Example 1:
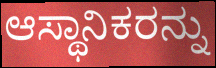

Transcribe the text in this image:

ಆಸ್ಥಾನಿಕರನ್ನು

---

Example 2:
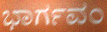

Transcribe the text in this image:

ಭಾರ್ಗವಂ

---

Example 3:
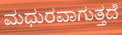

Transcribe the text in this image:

ಮಧುರವಾಗುತ್ತದೆ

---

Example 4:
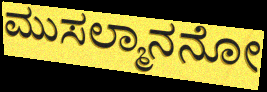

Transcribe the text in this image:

ಮುಸಲ್ಮಾನನೋ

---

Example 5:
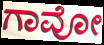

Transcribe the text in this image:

ಗಾವೋ